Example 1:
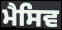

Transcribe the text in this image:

ਮੈਸਿਵ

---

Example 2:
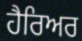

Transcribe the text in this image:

ਹੈਰਿਅਰ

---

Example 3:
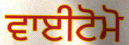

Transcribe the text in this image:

ਵਾਈਟੋਮੋ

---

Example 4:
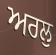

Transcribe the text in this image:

ਅਰਲੁ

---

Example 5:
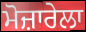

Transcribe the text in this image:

ਮੋਜ਼ਾਰੇਲਾ